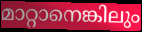
മാറ്റാനെങ്കിലും